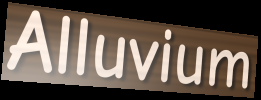
Alluvium